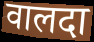
वालदा